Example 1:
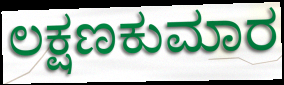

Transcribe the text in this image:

ಲಕ್ಷಣಕುಮಾರ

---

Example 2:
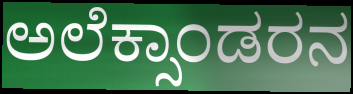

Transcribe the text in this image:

ಅಲೆಕ್ಸಾಂಡರನ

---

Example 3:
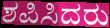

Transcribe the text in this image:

ಶಪಿಸಿದರು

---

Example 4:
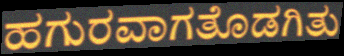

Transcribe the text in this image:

ಹಗುರವಾಗತೊಡಗಿತು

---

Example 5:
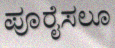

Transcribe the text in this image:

ಪೂರೈಸಲೂ